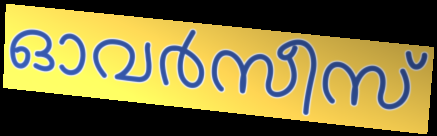
ഓവർസീസ്